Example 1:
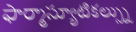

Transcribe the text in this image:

ఫార్మాస్యూటికల్స్ను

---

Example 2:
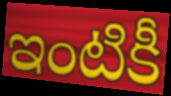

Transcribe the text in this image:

ఇంటికీ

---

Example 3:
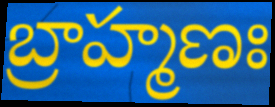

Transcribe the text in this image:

బ్రాహ్మణః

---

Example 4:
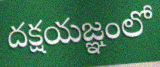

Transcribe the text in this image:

దక్షయజ్ఞంలో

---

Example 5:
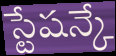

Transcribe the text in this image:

స్టేషన్కే